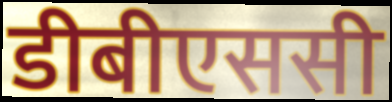
डीबीएससी